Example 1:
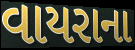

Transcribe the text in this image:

વાયરાના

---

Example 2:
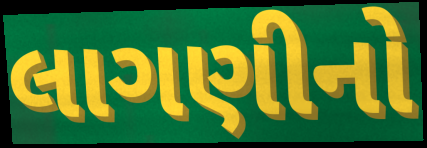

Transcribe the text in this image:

લાગણીનો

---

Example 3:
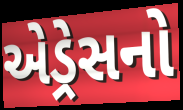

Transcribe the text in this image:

એડ્રેસનો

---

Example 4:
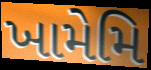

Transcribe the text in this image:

ખામેમિ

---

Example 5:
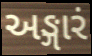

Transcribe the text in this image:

અઙ્ગારં